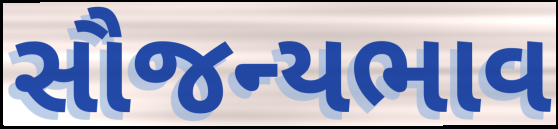
સૌજન્યભાવ